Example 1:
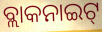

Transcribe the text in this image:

ବ୍ଲାକନାଇଟ୍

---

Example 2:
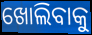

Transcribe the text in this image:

ଖୋଲିବାକୁ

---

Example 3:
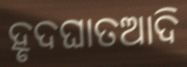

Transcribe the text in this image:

ହୃଦଘାତଆଦି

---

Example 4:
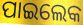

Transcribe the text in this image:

ପାଇଲେକ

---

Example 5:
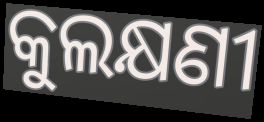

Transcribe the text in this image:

କୁଲକ୍ଷଣୀ